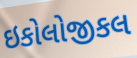
ઇકોલોજીકલ